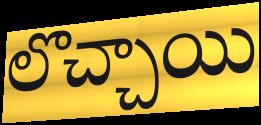
లొచ్చాయి